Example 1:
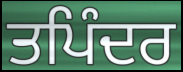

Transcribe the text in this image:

ਤਪਿੰਦਰ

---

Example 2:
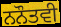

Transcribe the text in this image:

ਨਨੌਤਵੀ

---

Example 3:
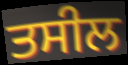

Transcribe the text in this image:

ਤਸੀਲ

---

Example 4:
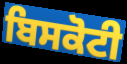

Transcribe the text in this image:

ਬਿਸਕੋਟੀ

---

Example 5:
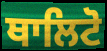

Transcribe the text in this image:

ਥਾਲਿਟੋ